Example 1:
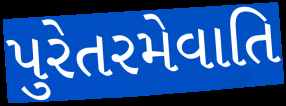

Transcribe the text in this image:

પુરેતરમેવાતિ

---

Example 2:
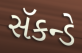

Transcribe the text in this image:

સૅકન્ડે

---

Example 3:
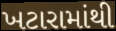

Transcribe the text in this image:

ખટારામાંથી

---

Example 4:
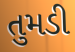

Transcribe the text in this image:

તુમડી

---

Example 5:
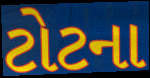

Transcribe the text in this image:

ટોટના